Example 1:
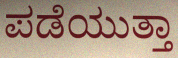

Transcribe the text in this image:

ಪಡೆಯುತ್ತಾ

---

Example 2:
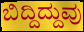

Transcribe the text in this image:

ಬಿದ್ದಿದ್ದುವು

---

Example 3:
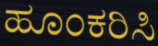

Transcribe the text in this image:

ಹೂಂಕರಿಸಿ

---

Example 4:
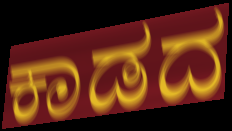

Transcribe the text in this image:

ಕಾಡದ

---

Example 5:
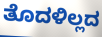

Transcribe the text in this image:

ತೊದಳಿಲ್ಲದ